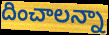
దించాలన్నా